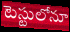
టెస్టులోనూ